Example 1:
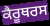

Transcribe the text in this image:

ਕੈਰੂਥਰਸ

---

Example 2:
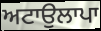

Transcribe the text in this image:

ਅਟਾਉਲਾਪਾ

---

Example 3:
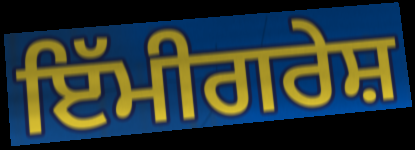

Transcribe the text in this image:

ਇੱਮੀਗਰੇਸ਼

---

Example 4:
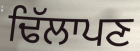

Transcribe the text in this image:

ਢਿੱਲਾਪਣ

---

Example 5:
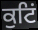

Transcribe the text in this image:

ਕੁਟਿਂ